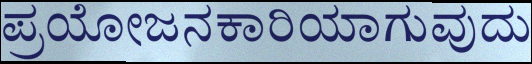
ಪ್ರಯೋಜನಕಾರಿಯಾಗುವುದು